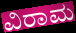
ವಿರಾಮ